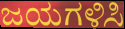
ಜಯಗಳಿಸಿ